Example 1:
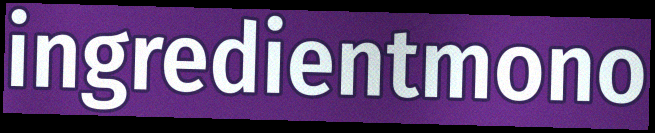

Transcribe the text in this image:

ingredientmono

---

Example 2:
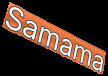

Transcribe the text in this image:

Samama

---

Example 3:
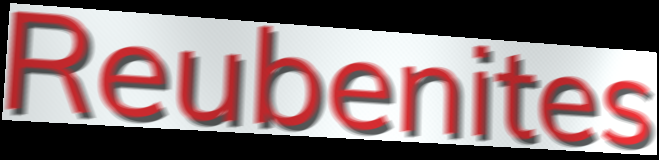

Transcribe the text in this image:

Reubenites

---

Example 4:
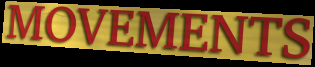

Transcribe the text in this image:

MOVEMENTS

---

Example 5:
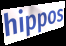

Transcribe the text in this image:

hippos